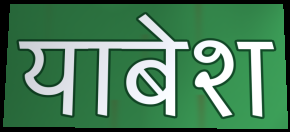
याबेश